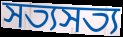
সত্যসত্য